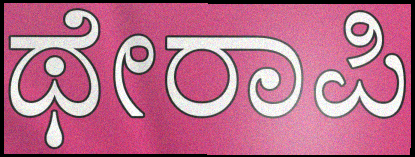
ಥೇರಾಪಿ